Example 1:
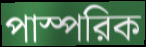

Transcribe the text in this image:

পাস্পরিক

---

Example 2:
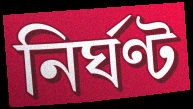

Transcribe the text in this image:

নির্ঘণ্ট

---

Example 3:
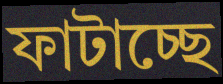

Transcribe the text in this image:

ফাটাচ্ছে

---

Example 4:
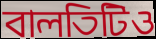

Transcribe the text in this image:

বালতিটিও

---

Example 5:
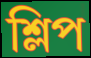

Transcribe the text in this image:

শ্লিপ